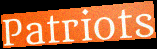
Patriots